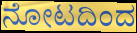
ನೋಟದಿಂದ